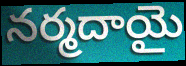
నర్మదాయై